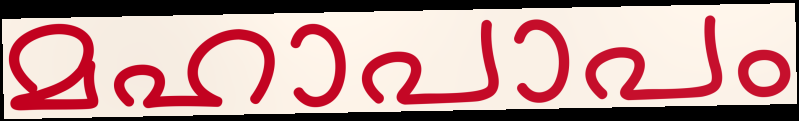
മഹാപാപം